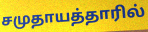
சமுதாயத்தாரில்